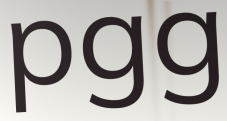
pgg